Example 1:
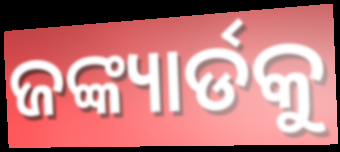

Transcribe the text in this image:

ଜଙ୍କ୍ୟାର୍ଡକୁ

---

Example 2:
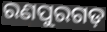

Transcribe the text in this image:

ରଣପୁରଗଡ଼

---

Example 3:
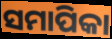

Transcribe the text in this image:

ସମାପିକା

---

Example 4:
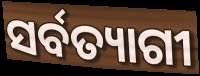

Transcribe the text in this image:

ସର୍ବତ୍ୟାଗୀ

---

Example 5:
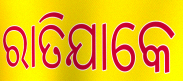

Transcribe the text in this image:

ରାତିଯାକେ